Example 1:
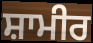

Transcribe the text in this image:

ਸ਼ਾਮੀਰ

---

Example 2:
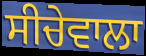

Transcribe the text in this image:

ਸੀਚੇਵਾਲਾ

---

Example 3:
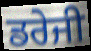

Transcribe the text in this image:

ਡਰੇਜੀ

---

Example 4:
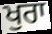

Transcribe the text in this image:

ਖੁਰਾ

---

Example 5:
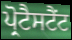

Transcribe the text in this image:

ਪ੍ਰੋਟੈਸਟੈਂਟ